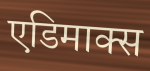
एडिमाक्स